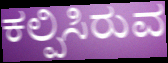
ಕಲ್ಪಿಸಿರುವ